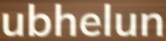
ubhelun